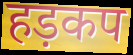
हड़कप